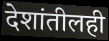
देशांतीलही